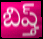
బిష్త్